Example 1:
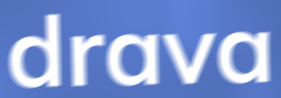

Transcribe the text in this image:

drava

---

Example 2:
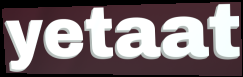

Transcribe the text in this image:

yetaat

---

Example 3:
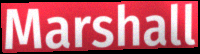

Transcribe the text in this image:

Marshall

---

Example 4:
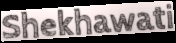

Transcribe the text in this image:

Shekhawati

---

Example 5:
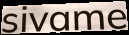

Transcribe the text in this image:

sivame